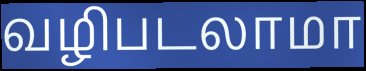
வழிபடலாமா